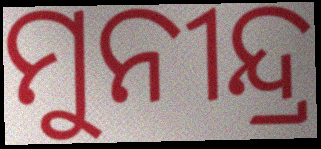
ମୁନୀନ୍ଦ୍ର